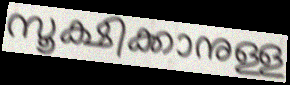
സൂക്ഷിക്കാനുള്ള